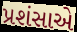
પ્રશંસાએ